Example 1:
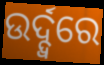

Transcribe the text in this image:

ଉର୍ଦ୍ଦ୍ୱରେ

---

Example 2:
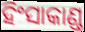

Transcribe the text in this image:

ହିଂସାକାଣ୍ଡ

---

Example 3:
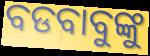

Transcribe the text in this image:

ବଡବାବୁଙ୍କୁ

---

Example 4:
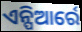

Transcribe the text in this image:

ଏନ୍ପିଆର୍ରେ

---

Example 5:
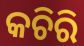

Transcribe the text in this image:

କଚିରି